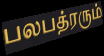
பலபத்ரரும்